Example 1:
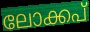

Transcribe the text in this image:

ലോക്കപ്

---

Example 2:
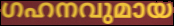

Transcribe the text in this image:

ഗഹനവുമായ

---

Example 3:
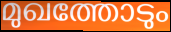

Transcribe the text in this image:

മുഖത്തോടും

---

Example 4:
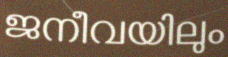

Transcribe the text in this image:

ജനീവയിലും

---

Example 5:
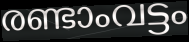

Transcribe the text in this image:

രണ്ടാംവട്ടം